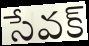
సేవక్